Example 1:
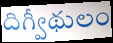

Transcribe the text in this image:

దిగ్వీథులం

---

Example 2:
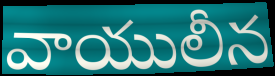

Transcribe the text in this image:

వాయులీన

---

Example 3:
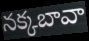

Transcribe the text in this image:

నక్కబావా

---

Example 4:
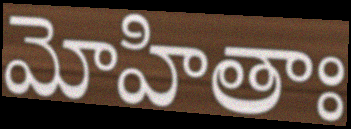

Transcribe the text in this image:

మోహితాః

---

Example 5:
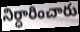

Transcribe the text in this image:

నిర్ధారించారు